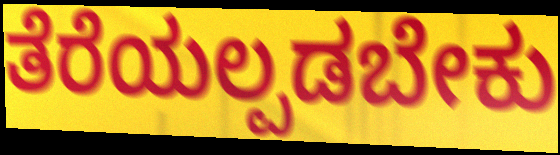
ತೆರೆಯಲ್ಪಡಬೇಕು